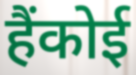
हैंकोई